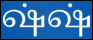
ஷ்ஷ்